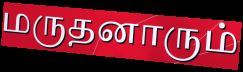
மருதனாரும்